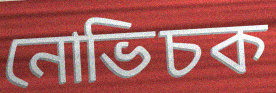
নোভিচক